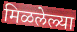
मिळलेल्या